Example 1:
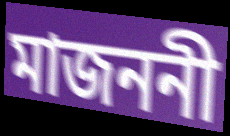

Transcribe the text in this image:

মাজননী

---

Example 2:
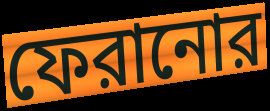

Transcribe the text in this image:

ফেরানোর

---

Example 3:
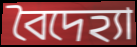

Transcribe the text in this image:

বৈদেহ্যা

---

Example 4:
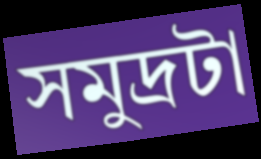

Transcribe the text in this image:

সমুদ্রটা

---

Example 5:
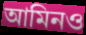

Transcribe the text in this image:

আমিনও